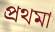
প্ৰথমা